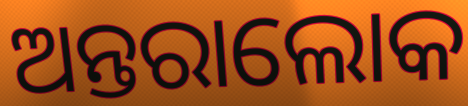
ଅନ୍ତରାଲୋକ